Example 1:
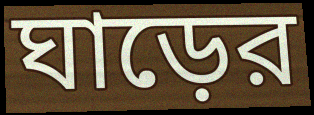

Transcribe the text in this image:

ঘাড়ের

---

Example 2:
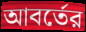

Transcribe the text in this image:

আবর্তের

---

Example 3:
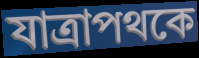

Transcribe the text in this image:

যাত্রাপথকে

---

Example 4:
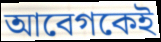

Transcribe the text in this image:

আবেগকেই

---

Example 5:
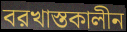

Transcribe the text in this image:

বরখাস্তকালীন